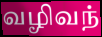
வழிவந்